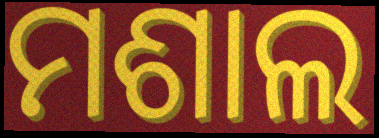
ମଶାଲ